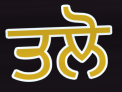
ਤਲੋ